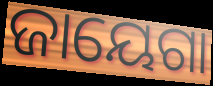
ଜାୟେଗା